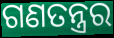
ଗଣତନ୍ତ୍ରର